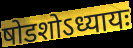
षोडशोऽध्यायः